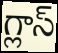
గ్లాస్